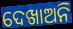
ଦେଖାଅନି